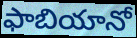
ఫాబియానో